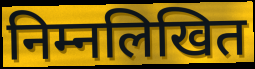
निम्नलिखित